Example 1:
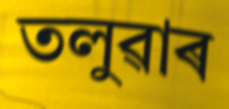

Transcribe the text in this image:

তলুৱাৰ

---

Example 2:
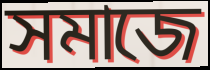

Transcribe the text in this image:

সমাজে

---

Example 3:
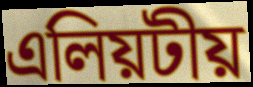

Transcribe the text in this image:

এলিয়টীয়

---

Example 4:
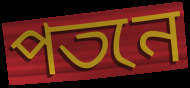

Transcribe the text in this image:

পতনে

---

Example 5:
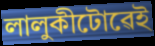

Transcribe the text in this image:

লালুকীটোৱেই